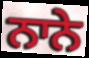
ਨਾਨੇ